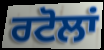
ਰਟੋਲਾਂ